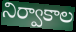
నిర్వాకాల